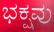
ಭಕ್ಷವು